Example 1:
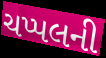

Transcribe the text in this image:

ચપ્પલની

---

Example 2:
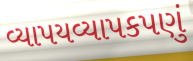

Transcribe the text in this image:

વ્યાપયવ્યાપકપણું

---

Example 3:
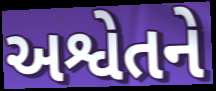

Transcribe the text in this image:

અશ્વેતને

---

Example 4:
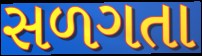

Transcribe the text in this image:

સળગતા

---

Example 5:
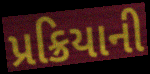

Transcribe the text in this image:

પ્રક્રિયાની